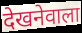
देखनेवाला